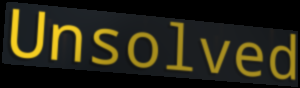
Unsolved